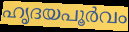
ഹൃദയപൂർവം